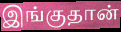
இங்குதான்